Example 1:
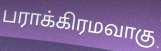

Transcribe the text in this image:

பராக்கிரமவாகு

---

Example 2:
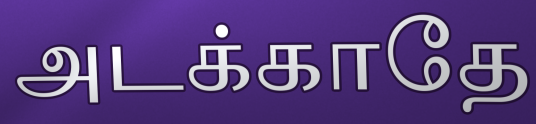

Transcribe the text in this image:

அடக்காதே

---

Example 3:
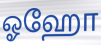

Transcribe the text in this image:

ஓஹோ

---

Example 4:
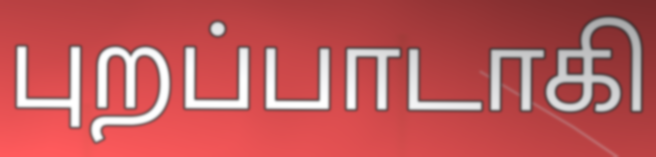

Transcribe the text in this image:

புறப்பாடாகி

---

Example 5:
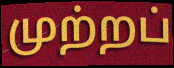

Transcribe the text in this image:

முற்றப்